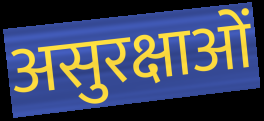
असुरक्षाओं